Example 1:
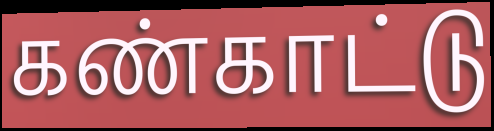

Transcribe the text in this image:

கண்காட்டு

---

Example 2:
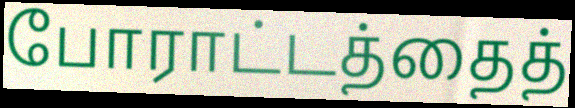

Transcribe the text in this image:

போராட்டத்தைத்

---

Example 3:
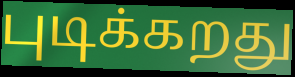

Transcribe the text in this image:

புடிக்கறது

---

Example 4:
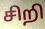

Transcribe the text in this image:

சிறி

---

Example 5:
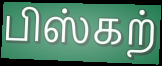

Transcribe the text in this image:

பிஸ்கற்